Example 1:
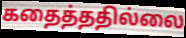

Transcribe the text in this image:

கதைத்ததில்லை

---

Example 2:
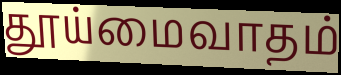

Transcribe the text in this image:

தூய்மைவாதம்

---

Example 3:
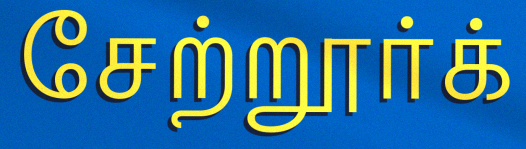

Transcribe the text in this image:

சேற்றூர்க்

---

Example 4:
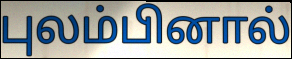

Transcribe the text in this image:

புலம்பினால்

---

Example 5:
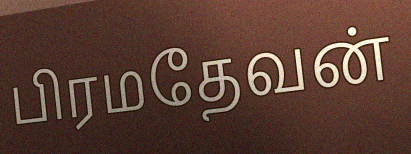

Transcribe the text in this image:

பிரமதேவன்